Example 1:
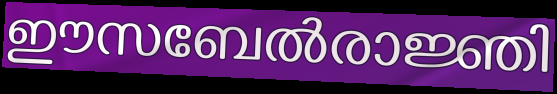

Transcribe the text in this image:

ഈസബേൽരാജ്ഞി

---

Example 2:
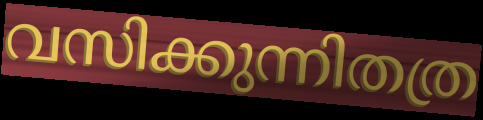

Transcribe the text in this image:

വസിക്കുന്നിതത്ര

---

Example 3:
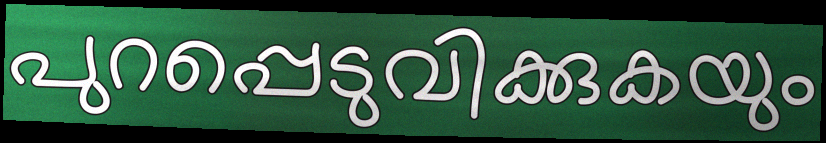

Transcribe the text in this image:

പുറപ്പെടുവിക്കുകയും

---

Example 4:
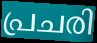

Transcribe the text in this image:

പ്രചരി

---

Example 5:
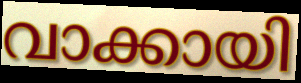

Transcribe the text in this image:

വാക്കായി